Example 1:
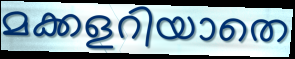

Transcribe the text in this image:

മക്കളറിയാതെ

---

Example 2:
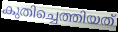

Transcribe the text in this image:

കുതിച്ചെത്തിയത്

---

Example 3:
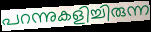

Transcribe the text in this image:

പറന്നുകളിച്ചിരുന്ന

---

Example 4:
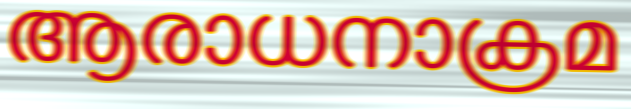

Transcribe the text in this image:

ആരാധനാക്രമ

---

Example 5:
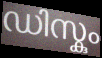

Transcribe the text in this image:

ഡിസ്കും